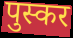
पुस्कर